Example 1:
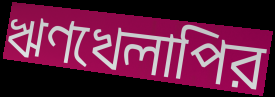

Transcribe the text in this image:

ঋণখেলাপির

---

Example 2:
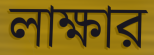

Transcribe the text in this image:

লাক্ষার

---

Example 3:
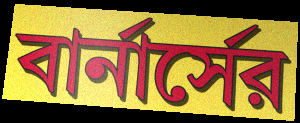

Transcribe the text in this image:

বার্নার্সের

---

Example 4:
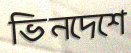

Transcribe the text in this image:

ভিনদেশে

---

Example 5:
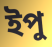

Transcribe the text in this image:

ইপু